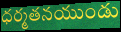
ధర్మతనయుండు